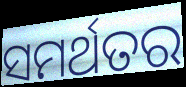
ସମର୍ଥତର